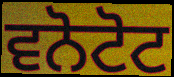
ਵਨੋਟੋਟ